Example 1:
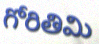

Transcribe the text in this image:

గోరితిమి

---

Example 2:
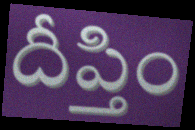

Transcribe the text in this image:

దీప్తిం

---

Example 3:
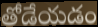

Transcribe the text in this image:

తోడేయడం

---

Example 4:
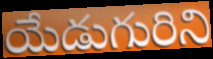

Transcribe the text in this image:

యేడుగురిని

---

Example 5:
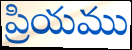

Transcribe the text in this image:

ప్రియము